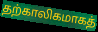
தற்காலிகமாகத்